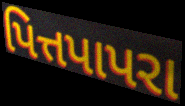
પિત્તપાપરા